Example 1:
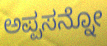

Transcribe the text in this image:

ಅಪ್ಪಸನ್ನೋ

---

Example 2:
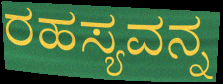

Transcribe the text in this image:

ರಹಸ್ಯವನ್ನ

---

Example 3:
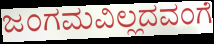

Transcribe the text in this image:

ಜಂಗಮವಿಲ್ಲದವಂಗೆ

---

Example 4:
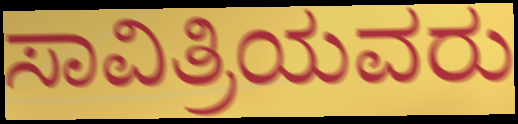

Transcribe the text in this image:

ಸಾವಿತ್ರಿಯವರು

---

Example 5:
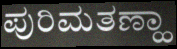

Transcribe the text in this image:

ಪುರಿಮತಣ್ಹಾ